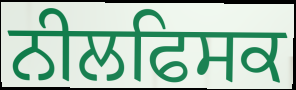
ਨੀਲਫਿਸਕ